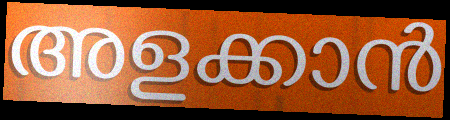
അളക്കാൻ